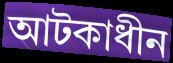
আটকাধীন